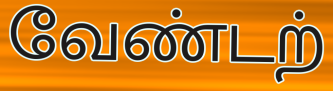
வேண்டற்